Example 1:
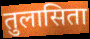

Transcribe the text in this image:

तुलासिता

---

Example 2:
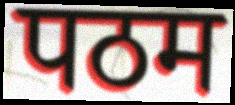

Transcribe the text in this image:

पठम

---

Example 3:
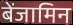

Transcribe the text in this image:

बेंजामिन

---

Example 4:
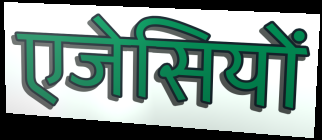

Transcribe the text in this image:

एजेसियों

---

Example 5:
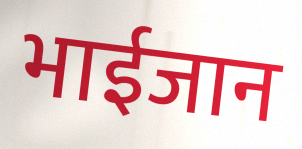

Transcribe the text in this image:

भाईजान